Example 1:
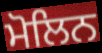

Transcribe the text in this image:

ਮੋਲਿਨ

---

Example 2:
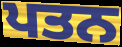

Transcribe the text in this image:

ਪਤਨ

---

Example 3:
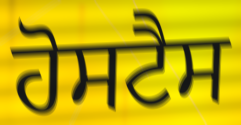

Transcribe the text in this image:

ਹੋਸਟੈਸ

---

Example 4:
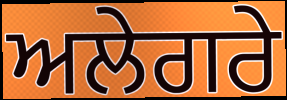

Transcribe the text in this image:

ਅਲੇਗਰੇ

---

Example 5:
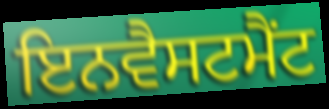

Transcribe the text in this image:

ਇਨਵੈਸਟਮੈਂਟ